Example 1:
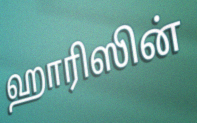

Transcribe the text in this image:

ஹாரிஸின்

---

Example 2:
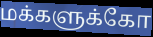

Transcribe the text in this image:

மக்களுக்கோ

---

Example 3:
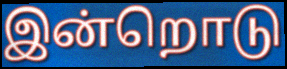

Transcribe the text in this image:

இன்றொடு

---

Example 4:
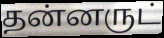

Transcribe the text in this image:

தன்னருட்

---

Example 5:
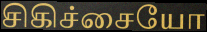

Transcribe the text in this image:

சிகிச்சையோ